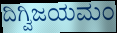
ದಿಗ್ವಿಜಯಮಂ